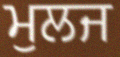
ਮੁਲਜ